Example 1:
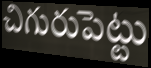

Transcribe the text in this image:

చిగురుపెట్టు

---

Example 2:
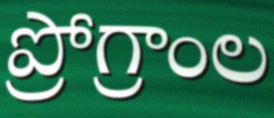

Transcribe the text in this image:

ప్రోగ్రాంల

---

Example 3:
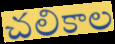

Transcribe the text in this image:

చలికాల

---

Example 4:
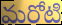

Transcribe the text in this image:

మరోటి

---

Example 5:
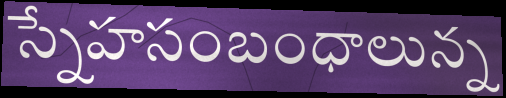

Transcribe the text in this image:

స్నేహసంబంధాలున్న